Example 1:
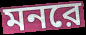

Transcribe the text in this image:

মনরে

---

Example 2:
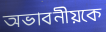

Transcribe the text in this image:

অভাবনীয়কে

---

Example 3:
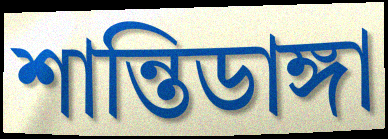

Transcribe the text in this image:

শান্তিডাঙ্গা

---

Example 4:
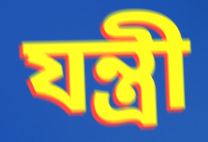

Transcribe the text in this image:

যন্ত্রী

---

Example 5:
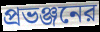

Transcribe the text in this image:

প্রভঞ্জনের